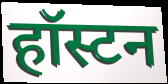
हॉस्टन